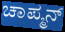
ಚಾಪ್ಮನ್